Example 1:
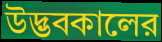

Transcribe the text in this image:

উদ্ভবকালের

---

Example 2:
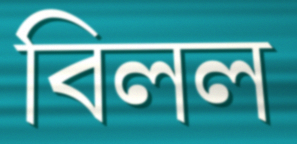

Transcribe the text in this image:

বিলল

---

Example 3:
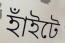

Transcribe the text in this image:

হাঁইটে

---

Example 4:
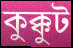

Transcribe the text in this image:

কুক্কুট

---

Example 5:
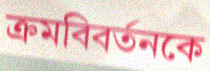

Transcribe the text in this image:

ক্রমবিবর্তনকে